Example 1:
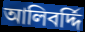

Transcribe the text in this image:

আলিবর্দ্দি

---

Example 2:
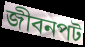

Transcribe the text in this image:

জীবনপট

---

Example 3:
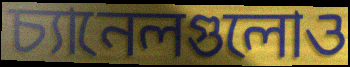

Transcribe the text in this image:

চ্যানেলগুলোও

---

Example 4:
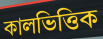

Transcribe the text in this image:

কালভিত্তিক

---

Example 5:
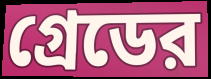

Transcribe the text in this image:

গ্রেডের